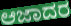
ಆಜಾದರ